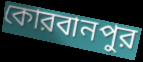
কোরবানপুর